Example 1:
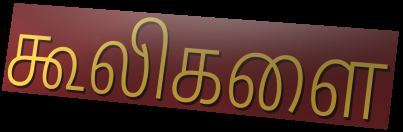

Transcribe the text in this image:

கூலிகளை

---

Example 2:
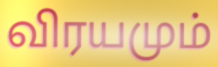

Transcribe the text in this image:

விரயமும்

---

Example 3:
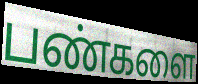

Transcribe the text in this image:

பண்களை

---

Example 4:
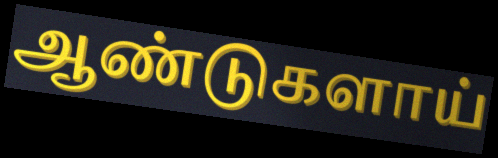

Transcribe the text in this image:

ஆண்டுகளாய்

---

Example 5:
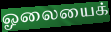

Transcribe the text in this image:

ஓலையைக்